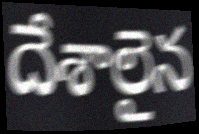
దేశాలైన